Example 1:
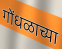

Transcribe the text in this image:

गोंधळाच्या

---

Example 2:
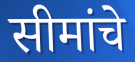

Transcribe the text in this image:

सीमांचे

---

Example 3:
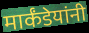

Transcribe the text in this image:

मार्कंडेयांनी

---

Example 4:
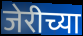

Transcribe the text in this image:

जेरीच्या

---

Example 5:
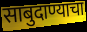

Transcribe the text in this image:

साबुदाण्याचा